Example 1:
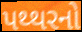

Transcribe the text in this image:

પથ્થરનો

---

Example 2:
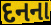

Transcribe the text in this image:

દનના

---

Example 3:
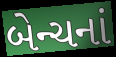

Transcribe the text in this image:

બેન્ચનાં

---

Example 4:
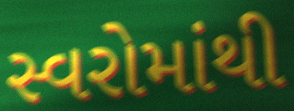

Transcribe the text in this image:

સ્વરોમાંથી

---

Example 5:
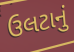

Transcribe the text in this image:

ઉલટાનું